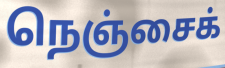
நெஞ்சைக்